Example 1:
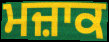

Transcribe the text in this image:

ਮਜ਼ਾਕ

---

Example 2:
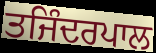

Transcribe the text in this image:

ਤਜਿੰਦਰਪਾਲ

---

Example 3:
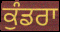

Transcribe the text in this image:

ਕੁੰਡਰਾ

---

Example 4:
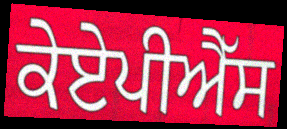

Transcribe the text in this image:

ਕੇਏਪੀਐੱਸ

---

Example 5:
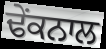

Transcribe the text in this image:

ਢੇਂਕਨਾਲ